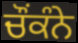
ਚੌਂਕੰਨੇ